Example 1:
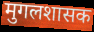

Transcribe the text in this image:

मुगलशासक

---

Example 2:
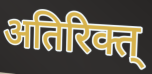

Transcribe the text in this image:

अतिरिक्त्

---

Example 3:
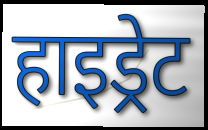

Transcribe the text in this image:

हाइड्रेट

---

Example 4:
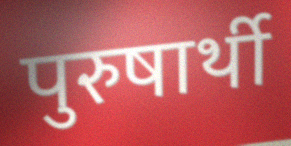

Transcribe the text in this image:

पुरुषार्थी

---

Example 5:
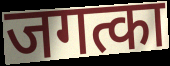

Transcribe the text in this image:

जगत्का